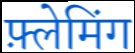
फ़्लेमिंग